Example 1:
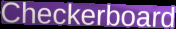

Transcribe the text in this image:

Checkerboard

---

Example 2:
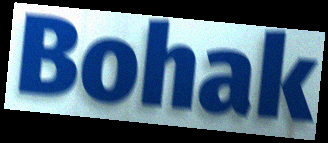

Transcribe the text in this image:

Bohak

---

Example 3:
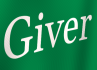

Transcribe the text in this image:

Giver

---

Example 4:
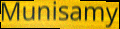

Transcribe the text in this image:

Munisamy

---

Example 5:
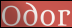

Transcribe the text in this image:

Odor